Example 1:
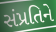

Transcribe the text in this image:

સંપ્રતિને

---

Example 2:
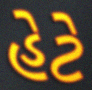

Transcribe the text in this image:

હેટે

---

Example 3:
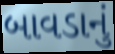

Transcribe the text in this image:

બાવડાનું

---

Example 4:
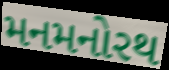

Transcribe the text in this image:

મનમનોરથ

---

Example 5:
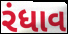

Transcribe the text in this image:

રંધાવ